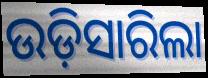
ଉଡ଼ିସାରିଲା